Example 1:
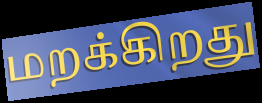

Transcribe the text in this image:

மறக்கிறது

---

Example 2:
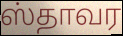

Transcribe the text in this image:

ஸ்தாவர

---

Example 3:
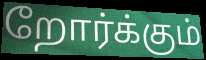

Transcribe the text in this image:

றோர்க்கும்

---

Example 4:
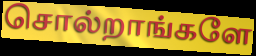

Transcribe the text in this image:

சொல்றாங்களே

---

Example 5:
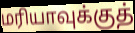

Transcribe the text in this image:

மரியாவுக்குத்